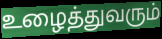
உழைத்துவரும்